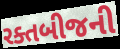
રક્તબીજની